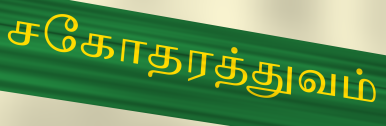
சகோதரத்துவம்